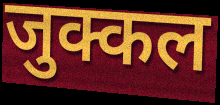
जुक्कल